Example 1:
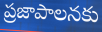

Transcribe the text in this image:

ప్రజాపాలనకు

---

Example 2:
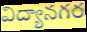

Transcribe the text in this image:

విద్యానగర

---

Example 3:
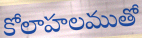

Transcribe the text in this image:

కోలాహలముతో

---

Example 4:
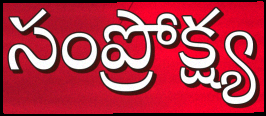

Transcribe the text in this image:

సంప్రోక్ష్య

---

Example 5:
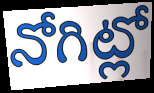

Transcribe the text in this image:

నోగిట్లో